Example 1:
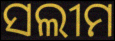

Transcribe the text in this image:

ସଲୀମ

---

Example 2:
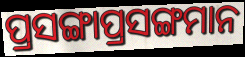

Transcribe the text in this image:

ପ୍ରସଙ୍ଗାପ୍ରସଙ୍ଗମାନ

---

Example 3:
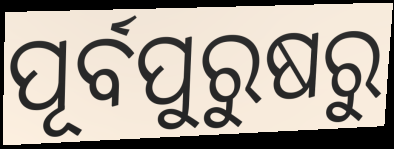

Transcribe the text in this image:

ପୂର୍ବପୁରୁଷରୁ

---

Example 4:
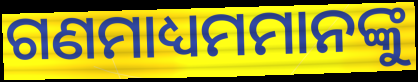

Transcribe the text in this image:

ଗଣମାଧ୍ୟମମାନଙ୍କୁ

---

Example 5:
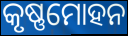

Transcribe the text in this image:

କୃଷ୍ଣମୋହନ